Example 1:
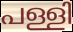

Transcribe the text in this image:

പള്ളി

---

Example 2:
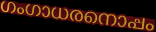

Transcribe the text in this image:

ഗംഗാധരനൊപ്പം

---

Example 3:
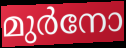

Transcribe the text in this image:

മുർനോ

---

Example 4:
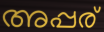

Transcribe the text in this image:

അപ്പര്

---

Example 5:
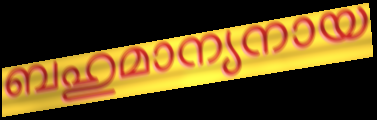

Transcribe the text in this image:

ബഹുമാന്യനായ